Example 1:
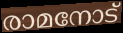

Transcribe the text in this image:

രാമനോട്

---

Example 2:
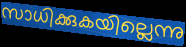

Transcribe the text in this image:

സാധിക്കുകയില്ലെന്നു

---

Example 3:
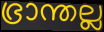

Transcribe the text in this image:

ഭ്രാന്തല്ല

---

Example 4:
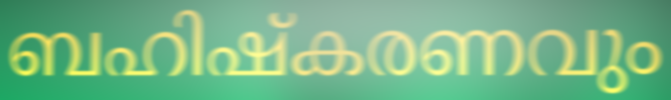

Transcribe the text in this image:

ബഹിഷ്കരണവും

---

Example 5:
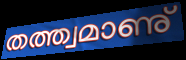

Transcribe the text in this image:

തത്ത്വമാണു്